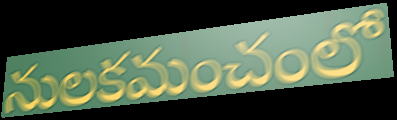
నులకమంచంలో